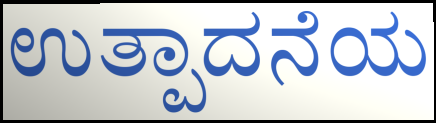
ಉತ್ಪಾದನೆಯ